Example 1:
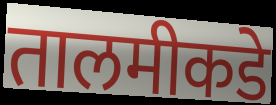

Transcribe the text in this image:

तालमीकडे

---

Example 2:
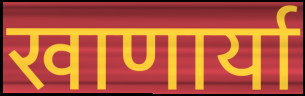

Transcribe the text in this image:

खाणार्या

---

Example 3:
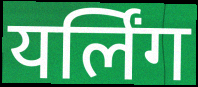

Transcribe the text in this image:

यर्लिंग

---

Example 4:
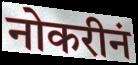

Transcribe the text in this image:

नोकरीनं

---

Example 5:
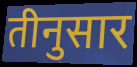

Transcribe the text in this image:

तीनुसार